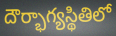
దౌర్భాగ్యస్థితిలో